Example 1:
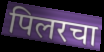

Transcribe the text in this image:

पिलरचा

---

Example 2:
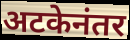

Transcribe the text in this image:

अटकेनंतर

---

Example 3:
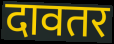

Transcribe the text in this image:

दावतर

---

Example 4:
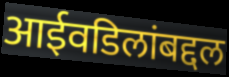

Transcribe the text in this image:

आईवडिलांबद्दल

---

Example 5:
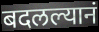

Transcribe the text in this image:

बदलल्यानं